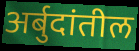
अर्बुदांतील